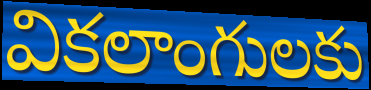
వికలాంగులకు